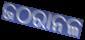
ଜଠରାନଳ